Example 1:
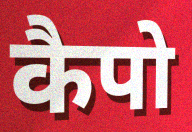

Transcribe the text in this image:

कैपो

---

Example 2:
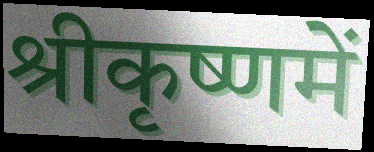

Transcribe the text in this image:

श्रीकृष्णमें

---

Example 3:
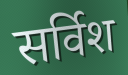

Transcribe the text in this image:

सर्विश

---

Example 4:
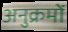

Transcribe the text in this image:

अनुक्रमों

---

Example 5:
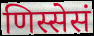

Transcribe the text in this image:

णिस्सेसं